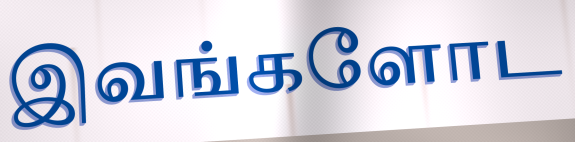
இவங்களோட